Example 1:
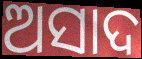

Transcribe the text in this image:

ଅସାଦ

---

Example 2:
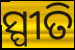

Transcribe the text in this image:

ସ୍ପୀତି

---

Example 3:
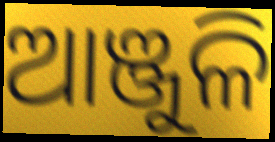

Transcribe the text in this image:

ଆଞ୍ଜୁଳି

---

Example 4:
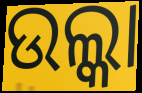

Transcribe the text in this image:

ଉଲ୍କା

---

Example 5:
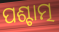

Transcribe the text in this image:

ପଶ୍ଚାତ୍ମ